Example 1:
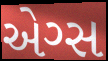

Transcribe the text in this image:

એગ્સ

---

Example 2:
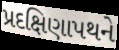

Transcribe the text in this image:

પ્રદક્ષિણાપથને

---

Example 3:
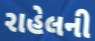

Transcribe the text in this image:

રાહેલની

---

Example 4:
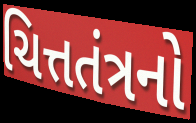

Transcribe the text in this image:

ચિત્તતંત્રનો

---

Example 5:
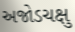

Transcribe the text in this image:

અજોડચક્ષુ